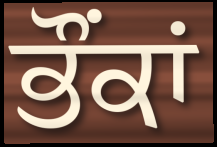
ਭੌਂਕਾਂ